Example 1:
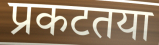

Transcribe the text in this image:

प्रकटतया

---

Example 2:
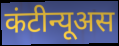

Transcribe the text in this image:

कंटीन्यूअस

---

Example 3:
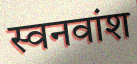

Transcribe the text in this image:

स्वनवांश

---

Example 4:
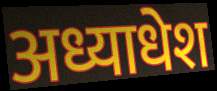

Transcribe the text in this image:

अध्याधेश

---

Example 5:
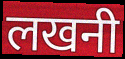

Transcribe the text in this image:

लखनी